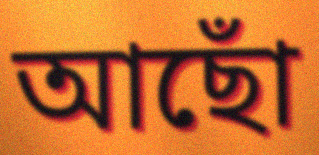
আছোঁ